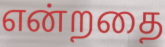
என்றதை